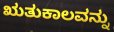
ಋತುಕಾಲವನ್ನು